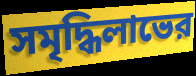
সমৃদ্ধিলাভের